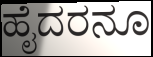
ಹೈದರನೂ